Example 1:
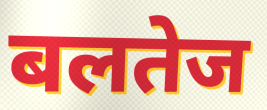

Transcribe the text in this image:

बलतेज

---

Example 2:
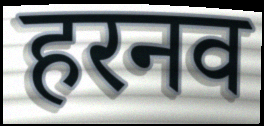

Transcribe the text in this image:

हरनव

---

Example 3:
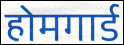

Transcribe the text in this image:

होमगार्ड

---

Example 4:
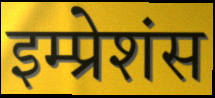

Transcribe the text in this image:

इम्प्रेशंस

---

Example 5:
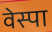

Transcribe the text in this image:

वेस्‍पा